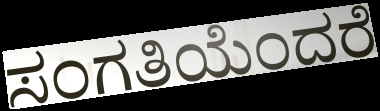
ಸಂಗತಿಯೆಂದರೆ